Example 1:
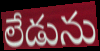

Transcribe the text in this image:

లేడును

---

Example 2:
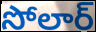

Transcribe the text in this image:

సోలార్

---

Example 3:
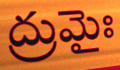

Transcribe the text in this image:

ద్రుమైః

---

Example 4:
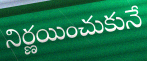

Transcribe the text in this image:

నిర్ణయించుకునే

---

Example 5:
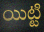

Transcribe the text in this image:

యిట్టి